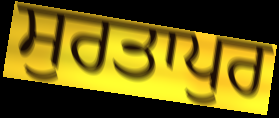
ਸੁਰਤਾਪੁਰ